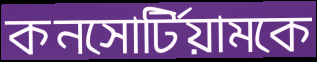
কনসোর্টিয়ামকে